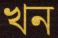
খন